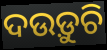
ଦଉଡ଼ୁଚି